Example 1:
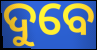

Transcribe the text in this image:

ଦୁବେ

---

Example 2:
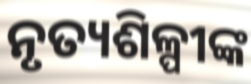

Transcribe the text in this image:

ନୃତ୍ୟଶିଳ୍ପୀଙ୍କ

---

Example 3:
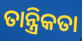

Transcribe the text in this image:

ତାନ୍ତ୍ରିକତା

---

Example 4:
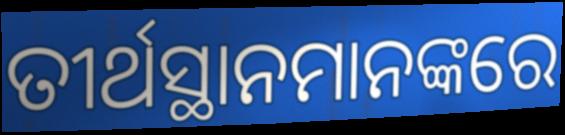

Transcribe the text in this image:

ତୀର୍ଥସ୍ଥାନମାନଙ୍କରେ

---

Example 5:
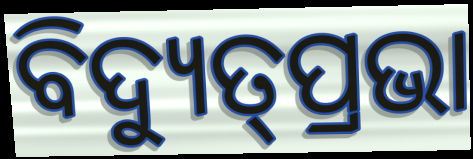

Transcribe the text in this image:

ବିଦ୍ୟୁତ୍‌ପ୍ରଭା